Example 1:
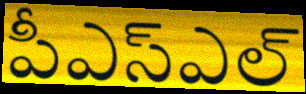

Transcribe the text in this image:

పీఎస్ఎల్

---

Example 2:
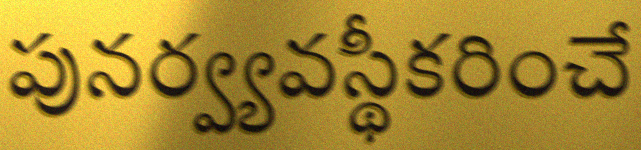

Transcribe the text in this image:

పునర్వ్యవస్థీకరించే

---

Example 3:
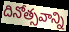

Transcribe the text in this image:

దినోత్సవాన్ని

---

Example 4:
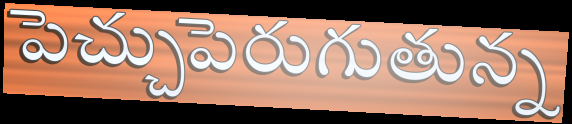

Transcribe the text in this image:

పెచ్చుపెరుగుతున్న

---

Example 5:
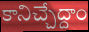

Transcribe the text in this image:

కానిచ్చేద్దాం